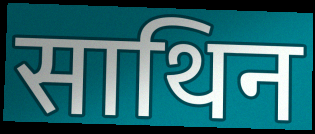
साथिन